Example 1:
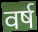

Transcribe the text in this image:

वर्ष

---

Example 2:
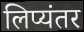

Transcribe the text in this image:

लिप्यंतर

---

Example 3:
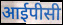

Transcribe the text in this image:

आईपीसी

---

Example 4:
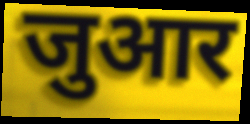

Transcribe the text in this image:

जुआर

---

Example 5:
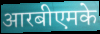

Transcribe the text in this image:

आरबीएमके